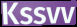
Kssvv